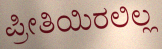
ಪ್ರೀತಿಯಿರಲಿಲ್ಲ